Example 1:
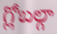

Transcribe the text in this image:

గ్లోబల్గా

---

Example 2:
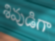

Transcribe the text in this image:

శివుడిగా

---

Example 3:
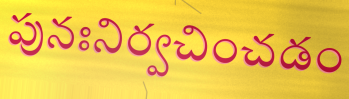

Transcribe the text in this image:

పునఃనిర్వచించడం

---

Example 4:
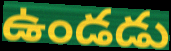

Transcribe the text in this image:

ఉండడు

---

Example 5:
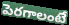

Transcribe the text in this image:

పెరగాలంటే